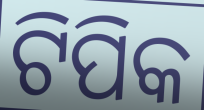
ଟିପିକ